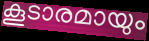
കൂടാരമായും